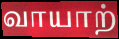
வாயாற்